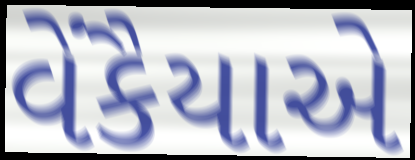
વેંકૈયાએ